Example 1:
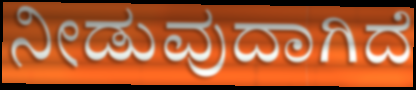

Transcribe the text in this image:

ನೀಡುವುದಾಗಿದೆ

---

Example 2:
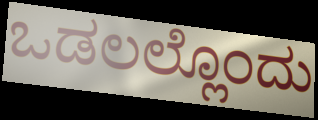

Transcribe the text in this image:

ಒಡಲಲ್ಲೊಂದು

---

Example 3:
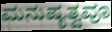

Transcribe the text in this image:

ಮನುಷ್ಯತ್ವವೂ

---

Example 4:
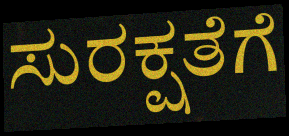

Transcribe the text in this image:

ಸುರಕ್ಷತೆಗೆ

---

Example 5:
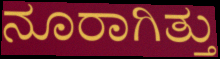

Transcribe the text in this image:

ನೂರಾಗಿತ್ತು